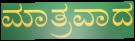
ಮಾತ್ರವಾದ